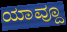
ಯಾವ್ದೂ